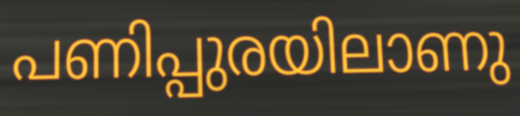
പണിപ്പുരയിലാണു